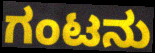
ಗಂಟನು